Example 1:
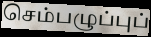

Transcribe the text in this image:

செம்பழுப்புப்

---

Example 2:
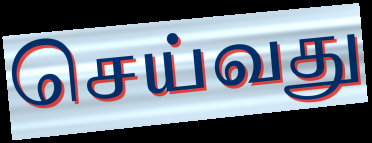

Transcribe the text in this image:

செய்வது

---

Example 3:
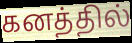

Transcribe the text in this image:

கனத்தில்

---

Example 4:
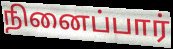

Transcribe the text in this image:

நினைப்பார்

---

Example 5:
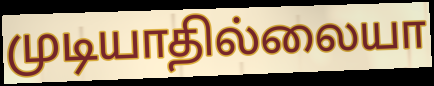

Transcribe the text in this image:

முடியாதில்லையா